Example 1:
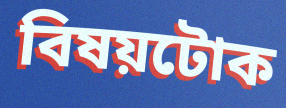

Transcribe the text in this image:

বিষয়টোক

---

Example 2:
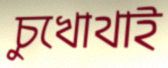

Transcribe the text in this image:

চুখোথাই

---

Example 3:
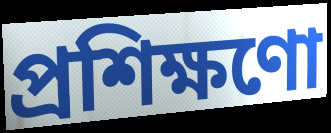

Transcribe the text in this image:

প্ৰশিক্ষণো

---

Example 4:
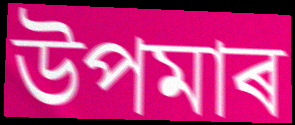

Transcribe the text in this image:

উপমাৰ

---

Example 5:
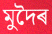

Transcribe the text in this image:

মুদৈৰ